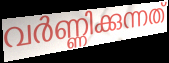
വർണ്ണിക്കുന്നത്